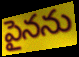
పైనను